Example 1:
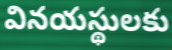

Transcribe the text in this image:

వినయస్థులకు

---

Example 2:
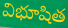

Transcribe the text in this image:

విభూషిత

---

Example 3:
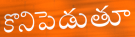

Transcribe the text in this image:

కొనిపెడుతూ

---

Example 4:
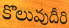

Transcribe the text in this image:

కొలువుదీరి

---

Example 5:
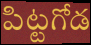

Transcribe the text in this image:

పిట్టగోడ